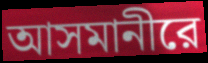
আসমানীরে